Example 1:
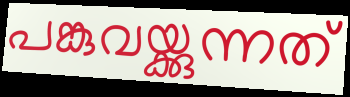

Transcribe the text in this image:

പങ്കുവയ്ക്കുന്നത്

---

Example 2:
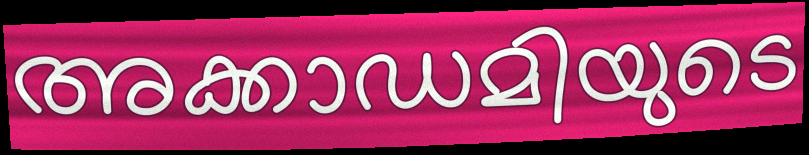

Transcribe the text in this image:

അക്കാഡമിയുടെ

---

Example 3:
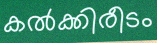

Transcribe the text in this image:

കൽക്കിരീടം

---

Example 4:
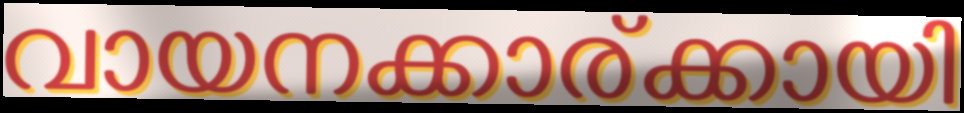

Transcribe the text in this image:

വായനക്കാര്ക്കായി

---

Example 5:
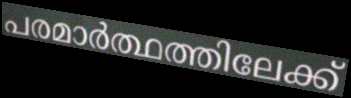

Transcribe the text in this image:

പരമാർത്ഥത്തിലേക്ക്